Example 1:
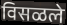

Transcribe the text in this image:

विसळले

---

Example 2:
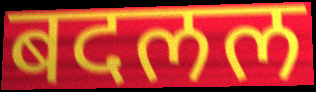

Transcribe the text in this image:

बदलल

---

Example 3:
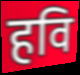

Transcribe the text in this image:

हवि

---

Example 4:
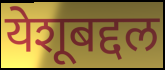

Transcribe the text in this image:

येशूबद्दल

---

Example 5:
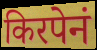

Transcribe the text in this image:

किरपेनं